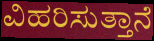
ವಿಹರಿಸುತ್ತಾನೆ